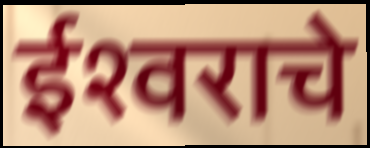
ईश्वराचे